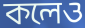
কলেও